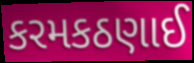
કરમકઠણાઈ